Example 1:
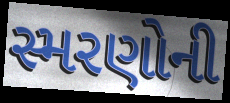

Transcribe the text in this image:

સ્મરણોની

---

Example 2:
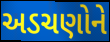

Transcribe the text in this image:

અડચણોને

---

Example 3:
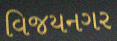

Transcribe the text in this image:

વિજયનગર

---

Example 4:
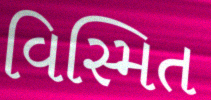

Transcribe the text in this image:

વિસ્મિત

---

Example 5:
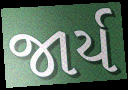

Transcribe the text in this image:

જાર્ય